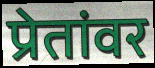
प्रेतांवर